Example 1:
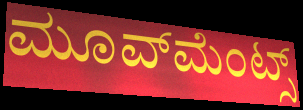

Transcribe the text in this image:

ಮೂವ್‍ಮೆಂಟ್ಸ್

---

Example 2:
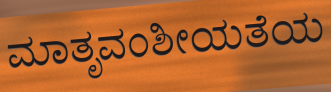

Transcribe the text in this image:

ಮಾತೃವಂಶೀಯತೆಯ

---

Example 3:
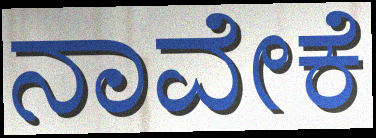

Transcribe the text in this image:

ನಾವೇಕೆ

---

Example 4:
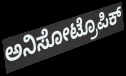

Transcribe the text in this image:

ಅನಿಸೋಟ್ರೊಪಿಕ್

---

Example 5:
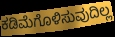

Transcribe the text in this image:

ಕಡಿಮೆಗೊಳಿಸುವುದಿಲ್ಲ